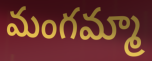
మంగమ్మా